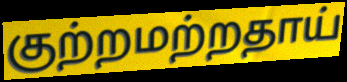
குற்றமற்றதாய்